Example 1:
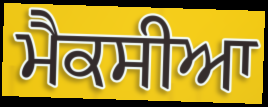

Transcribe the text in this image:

ਮੈਕਸੀਆ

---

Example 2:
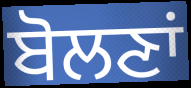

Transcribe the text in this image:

ਬੋਲਣਾਂ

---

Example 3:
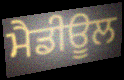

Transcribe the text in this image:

ਮੈਡੀਊਲ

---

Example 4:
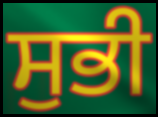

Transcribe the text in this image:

ਸੁਭੀ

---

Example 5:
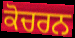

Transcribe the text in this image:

ਕੋਚਰਨ